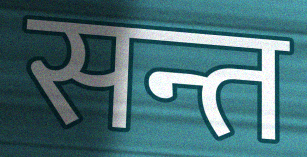
सन्त